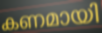
കണമായി